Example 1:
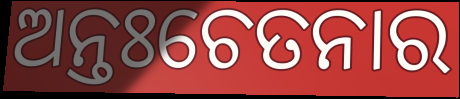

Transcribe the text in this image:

ଅନ୍ତଃଚେତନାର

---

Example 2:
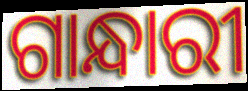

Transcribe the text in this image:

ଗାନ୍ଧାରୀ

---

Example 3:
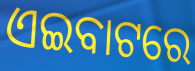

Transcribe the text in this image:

ଏଇବାଟରେ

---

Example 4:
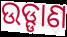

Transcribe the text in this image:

ଉଡ୍ଡାଣ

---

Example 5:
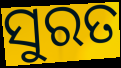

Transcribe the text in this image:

ସୁରତ